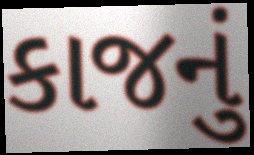
કાજનું